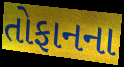
તોફાનના